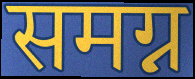
समग्न